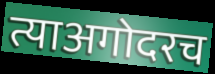
त्याअगोदरच